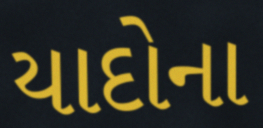
યાદોના